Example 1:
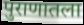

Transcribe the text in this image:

पुराणातला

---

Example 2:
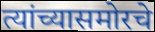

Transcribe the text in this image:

त्यांच्यासमोरचे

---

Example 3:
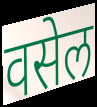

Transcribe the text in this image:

वसेल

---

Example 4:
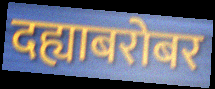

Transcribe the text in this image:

दह्याबरोबर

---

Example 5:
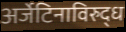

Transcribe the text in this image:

अर्जेटिनाविरुद्ध